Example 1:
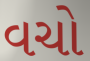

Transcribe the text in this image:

વચો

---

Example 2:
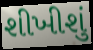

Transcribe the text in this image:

શીખીશું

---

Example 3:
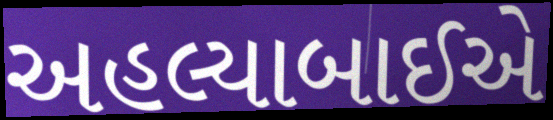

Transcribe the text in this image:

અહલ્યાબાઈએ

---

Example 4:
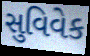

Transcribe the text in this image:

સુવિવેક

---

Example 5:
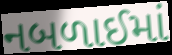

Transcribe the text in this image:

નબળાઈમાં